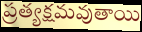
ప్రత్యక్షమవుతాయి